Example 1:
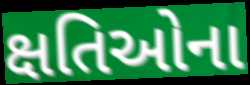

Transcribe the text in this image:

ક્ષતિઓના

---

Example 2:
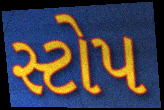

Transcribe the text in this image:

સ્ટોપ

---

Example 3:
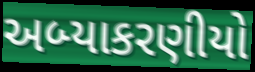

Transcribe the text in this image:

અબ્યાકરણીયો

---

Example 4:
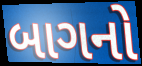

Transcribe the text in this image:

બાગનો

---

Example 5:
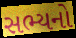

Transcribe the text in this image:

સભ્યનો